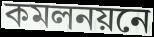
কমলনয়নে